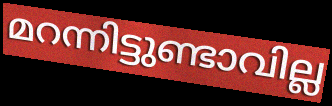
മറന്നിട്ടുണ്ടാവില്ല